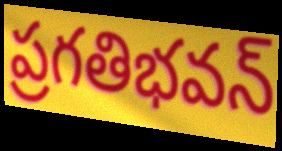
ప్రగతిభవన్